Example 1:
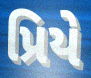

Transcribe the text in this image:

પ્રિયે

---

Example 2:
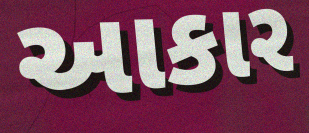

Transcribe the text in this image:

આકાર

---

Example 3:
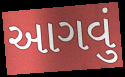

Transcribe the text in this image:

આગવું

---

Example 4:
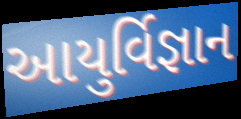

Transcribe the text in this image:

આયુર્વિજ્ઞાન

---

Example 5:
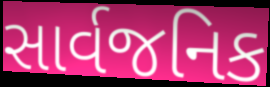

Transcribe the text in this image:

સાર્વજનિક